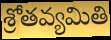
శ్రోతవ్యమితి